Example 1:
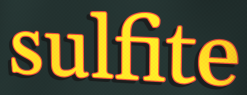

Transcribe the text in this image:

sulfite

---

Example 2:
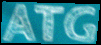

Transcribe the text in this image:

ATG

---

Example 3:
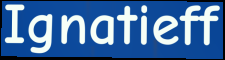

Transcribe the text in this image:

Ignatieff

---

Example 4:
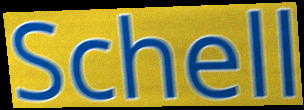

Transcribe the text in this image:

Schell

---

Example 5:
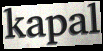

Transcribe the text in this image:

kapal